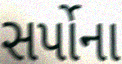
સર્પોના